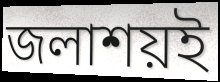
জলাশয়ই